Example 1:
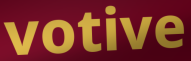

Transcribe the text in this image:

votive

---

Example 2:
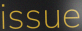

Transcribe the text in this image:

issue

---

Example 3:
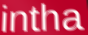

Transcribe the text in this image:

intha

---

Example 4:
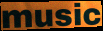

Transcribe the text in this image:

music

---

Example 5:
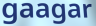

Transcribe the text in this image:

gaagar